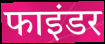
फाइंडर